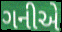
ગનીએ